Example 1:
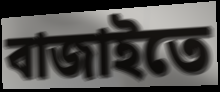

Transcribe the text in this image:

বাজাইতে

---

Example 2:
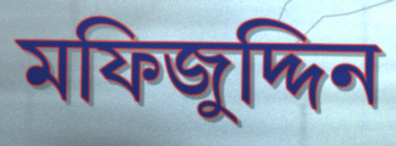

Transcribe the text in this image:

মফিজুদ্দিন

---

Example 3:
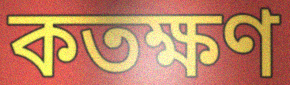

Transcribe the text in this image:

কতক্ষণ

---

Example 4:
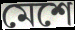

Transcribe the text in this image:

মেশে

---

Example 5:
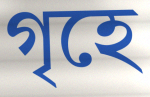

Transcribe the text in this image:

গৃহে